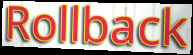
Rollback